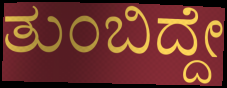
ತುಂಬಿದ್ದೇ